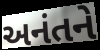
અનંતને